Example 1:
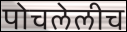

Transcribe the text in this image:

पोचलेलीच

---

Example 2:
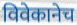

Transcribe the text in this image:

विवेकानेच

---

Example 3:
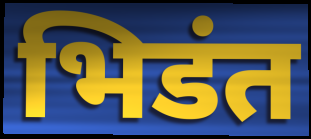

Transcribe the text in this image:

भिडंत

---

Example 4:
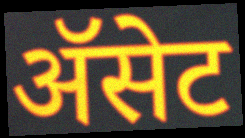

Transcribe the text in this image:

ॲसेट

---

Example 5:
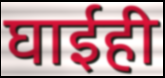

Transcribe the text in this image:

घाईही